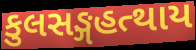
કુલસઙ્ગહત્થાય